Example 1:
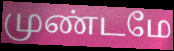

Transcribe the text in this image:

முண்டமே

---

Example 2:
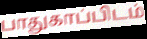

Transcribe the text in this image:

பாதுகாப்பிடம்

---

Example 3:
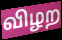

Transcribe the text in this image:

விழற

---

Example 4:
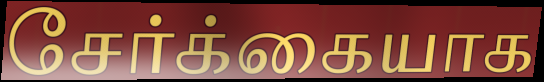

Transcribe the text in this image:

சேர்க்கையாக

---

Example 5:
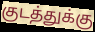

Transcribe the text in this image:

குடத்துக்கு